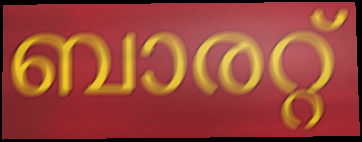
ബാരറ്റ്